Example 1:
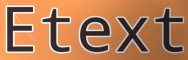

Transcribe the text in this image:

Etext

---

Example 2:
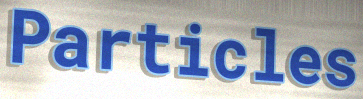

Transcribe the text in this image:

Particles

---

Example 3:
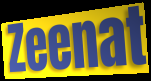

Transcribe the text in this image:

Zeenat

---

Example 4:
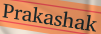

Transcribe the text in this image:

Prakashak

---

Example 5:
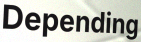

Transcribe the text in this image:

Depending